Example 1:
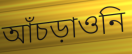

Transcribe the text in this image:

আঁচড়াওনি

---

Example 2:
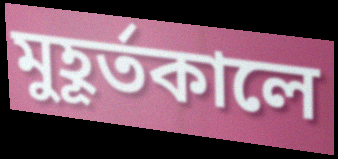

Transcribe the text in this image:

মুহূর্তকালে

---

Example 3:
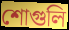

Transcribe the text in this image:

শোগুলি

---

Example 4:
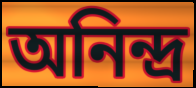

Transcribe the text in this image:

অনিন্দ্র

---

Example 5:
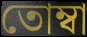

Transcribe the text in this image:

তোম্বা